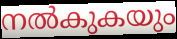
നൽകുകയും